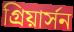
গ্রিয়ার্সন